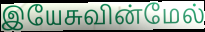
இயேசுவின்மேல்